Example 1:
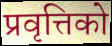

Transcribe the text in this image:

प्रवृत्तिको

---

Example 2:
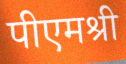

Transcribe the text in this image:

पीएमश्री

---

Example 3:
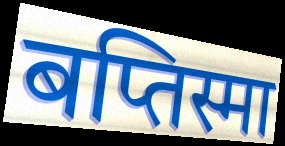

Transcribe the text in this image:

बप्तिस्मा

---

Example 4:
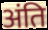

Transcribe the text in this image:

अंति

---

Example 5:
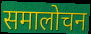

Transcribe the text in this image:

समालोचन